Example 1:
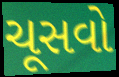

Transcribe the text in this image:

ચૂસવો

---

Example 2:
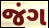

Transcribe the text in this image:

જંગ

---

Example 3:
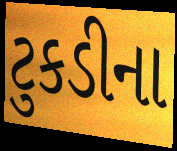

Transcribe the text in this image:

ટુકડીના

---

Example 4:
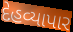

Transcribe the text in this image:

દેહવ્યાપાર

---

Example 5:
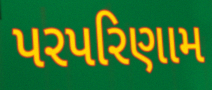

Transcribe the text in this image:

પરપરિણામ